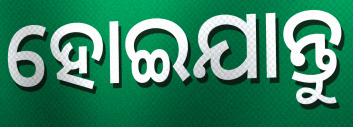
ହୋଇଯାନ୍ତୁ